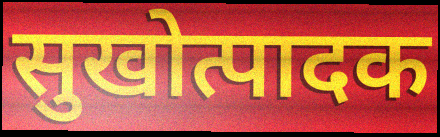
सुखोत्पादक